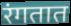
रंगतात